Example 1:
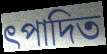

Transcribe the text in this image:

ৎপাদিত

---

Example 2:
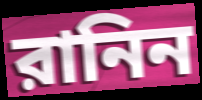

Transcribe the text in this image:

রানিন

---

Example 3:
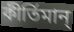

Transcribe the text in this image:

কীর্তিমান্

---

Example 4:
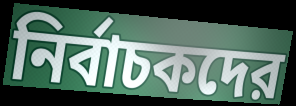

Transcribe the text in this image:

নির্বাচকদের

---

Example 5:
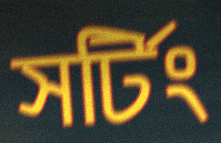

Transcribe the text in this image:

সর্টিং